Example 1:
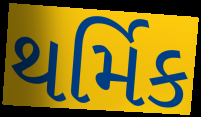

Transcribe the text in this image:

થર્મિક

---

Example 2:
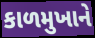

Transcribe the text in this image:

કાળમુખાને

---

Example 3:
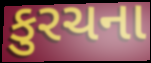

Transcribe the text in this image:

કુરચના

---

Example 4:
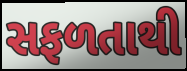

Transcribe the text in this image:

સફળતાથી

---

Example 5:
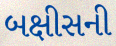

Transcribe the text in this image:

બક્ષીસની